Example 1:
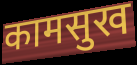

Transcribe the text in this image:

कामसुख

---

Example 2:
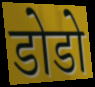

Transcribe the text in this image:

डोडो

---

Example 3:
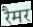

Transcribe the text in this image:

रैमर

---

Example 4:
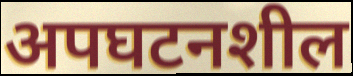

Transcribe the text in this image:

अपघटनशील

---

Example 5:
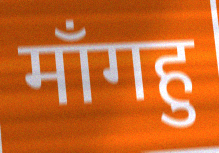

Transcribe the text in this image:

माँगहु